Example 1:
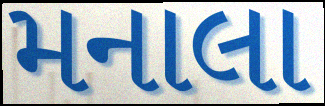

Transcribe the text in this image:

મનાલા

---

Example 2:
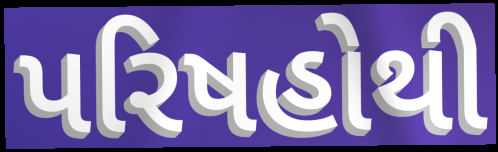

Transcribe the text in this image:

પરિષહોથી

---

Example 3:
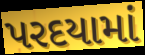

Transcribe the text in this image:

પરદયામાં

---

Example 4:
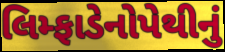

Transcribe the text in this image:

લિમ્ફાડેનોપેથીનું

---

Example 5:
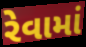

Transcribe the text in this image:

રેવામાં